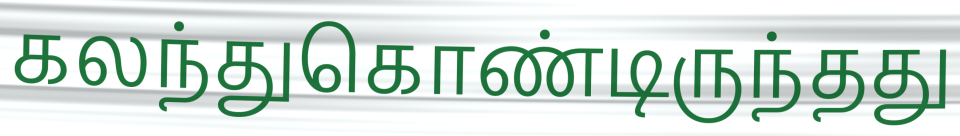
கலந்துகொண்டிருந்தது